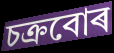
চক্ৰবোৰ